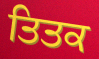
ਤਿਤਕ